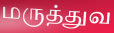
மருத்துவ